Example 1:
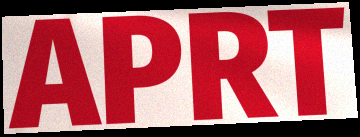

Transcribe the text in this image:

APRT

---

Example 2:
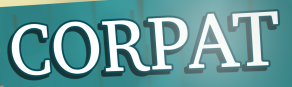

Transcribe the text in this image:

CORPAT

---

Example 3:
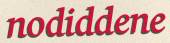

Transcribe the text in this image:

nodiddene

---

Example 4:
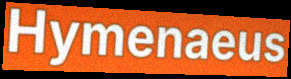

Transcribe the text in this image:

Hymenaeus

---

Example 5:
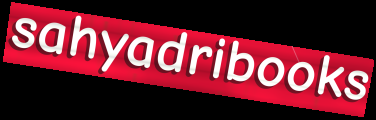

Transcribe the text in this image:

sahyadribooks